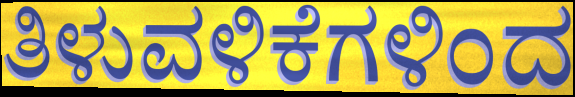
ತಿಳುವಳಿಕೆಗಳಿಂದ